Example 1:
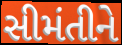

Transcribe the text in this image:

સીમંતીને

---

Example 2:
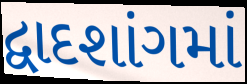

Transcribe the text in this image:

દ્વાદશાંગમાં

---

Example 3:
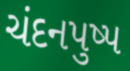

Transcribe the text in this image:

ચંદનપુષ્પ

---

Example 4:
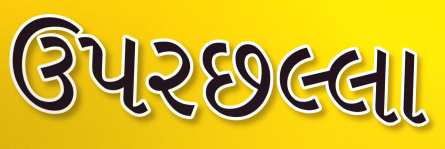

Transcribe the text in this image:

ઉપરછલ્લા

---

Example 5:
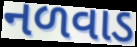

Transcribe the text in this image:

નળવાડ